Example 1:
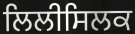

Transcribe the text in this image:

ਲਿਲੀਸਿਲਕ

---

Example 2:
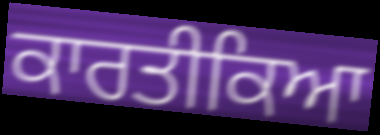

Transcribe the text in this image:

ਕਾਰਤੀਕਿਆ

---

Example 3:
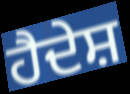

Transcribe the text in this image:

ਹੈਦੇਸ਼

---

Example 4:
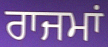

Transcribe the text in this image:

ਰਾਜਮਾਂ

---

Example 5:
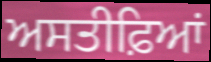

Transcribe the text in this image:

ਅਸਤੀਫ਼ਿਆਂ